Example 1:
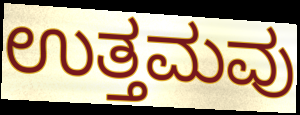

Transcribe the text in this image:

ಉತ್ತಮವು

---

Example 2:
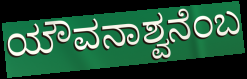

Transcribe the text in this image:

ಯೌವನಾಶ್ವನೆಂಬ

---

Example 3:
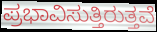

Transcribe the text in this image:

ಪ್ರಭಾವಿಸುತ್ತಿರುತ್ತವೆ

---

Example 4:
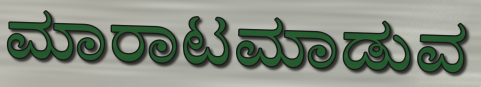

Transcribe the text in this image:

ಮಾರಾಟಮಾಡುವ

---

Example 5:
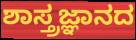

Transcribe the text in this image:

ಶಾಸ್ತ್ರಜ್ಞಾನದ